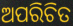
ଅପରିଚିତ